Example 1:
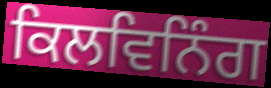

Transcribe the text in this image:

ਕਿਲਵਿਨਿੰਗ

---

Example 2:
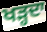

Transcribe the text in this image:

ਖੜ੍ਹਦਾ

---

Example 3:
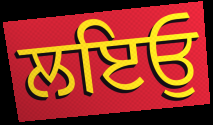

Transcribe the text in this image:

ਲਇਓੁ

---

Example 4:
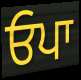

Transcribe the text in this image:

ਓਪਾ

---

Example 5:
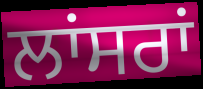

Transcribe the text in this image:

ਲਾਂਸਰਾਂ